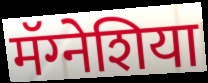
मॅग्‍नेशिया